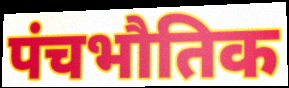
पंचभौतिक